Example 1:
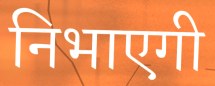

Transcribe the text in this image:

निभाएगी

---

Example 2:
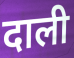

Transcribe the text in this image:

दाली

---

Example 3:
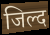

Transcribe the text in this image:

जिल्द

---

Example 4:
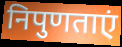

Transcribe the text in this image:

निपुणताएं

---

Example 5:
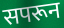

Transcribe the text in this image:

सपरून